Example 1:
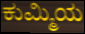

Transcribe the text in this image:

ಕುಮ್ಮಿಯ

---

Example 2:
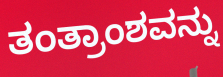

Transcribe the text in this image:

ತಂತ್ರಾಂಶವನ್ನು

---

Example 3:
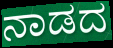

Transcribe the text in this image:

ನಾಡದ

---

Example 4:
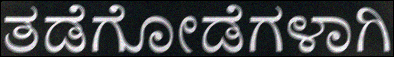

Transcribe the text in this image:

ತಡೆಗೋಡೆಗಳಾಗಿ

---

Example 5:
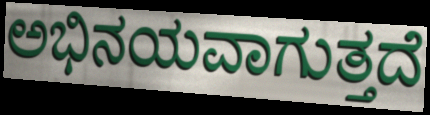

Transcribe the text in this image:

ಅಭಿನಯವಾಗುತ್ತದೆ